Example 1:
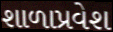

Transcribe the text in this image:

શાળાપ્રવેશ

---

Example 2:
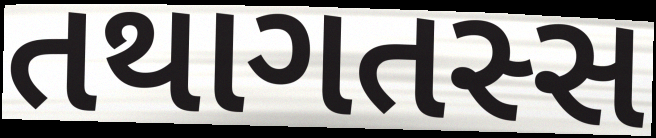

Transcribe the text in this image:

તથાગતસ્સ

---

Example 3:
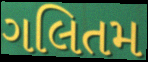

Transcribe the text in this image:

ગલિતમ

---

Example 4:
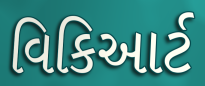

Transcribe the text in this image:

વિકિઆર્ટ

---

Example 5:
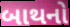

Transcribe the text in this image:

બાથનો